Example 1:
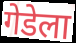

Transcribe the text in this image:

गेडेला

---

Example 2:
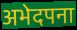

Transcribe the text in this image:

अभेदपना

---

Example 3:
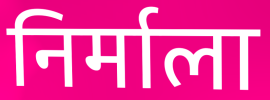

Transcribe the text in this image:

निर्माला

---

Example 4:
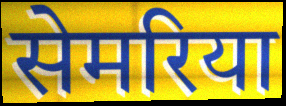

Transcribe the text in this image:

सेमरिया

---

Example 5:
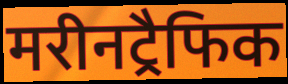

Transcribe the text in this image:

मरीनट्रैफिक